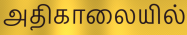
அதிகாலையில்